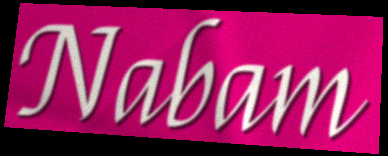
Nabam